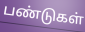
பண்டுகள்